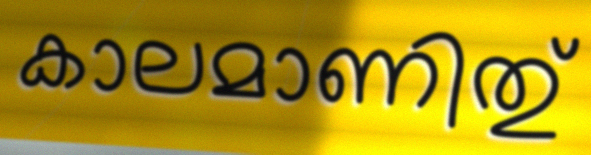
കാലമാണിതു്